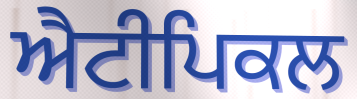
ਐਟੀਪਿਕਲ